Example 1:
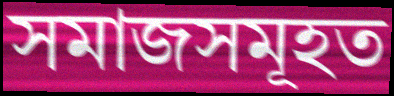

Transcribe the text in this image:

সমাজসমূহত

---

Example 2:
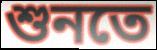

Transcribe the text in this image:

শুনতে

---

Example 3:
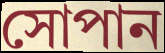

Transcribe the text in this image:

সোপান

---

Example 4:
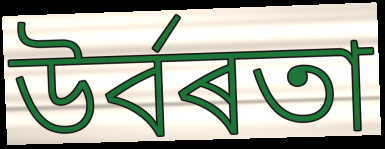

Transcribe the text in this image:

উৰ্বৰতা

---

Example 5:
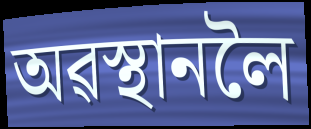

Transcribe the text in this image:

অৱস্থানলৈ